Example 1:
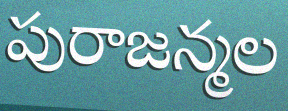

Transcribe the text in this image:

పురాజన్మల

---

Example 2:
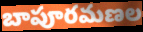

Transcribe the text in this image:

బాపూరమణల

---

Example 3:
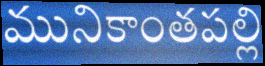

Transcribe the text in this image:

మునికాంతపల్లి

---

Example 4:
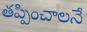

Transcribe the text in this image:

తప్పించాలనే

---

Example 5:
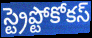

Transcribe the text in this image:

స్ట్రెప్టోకోకస్